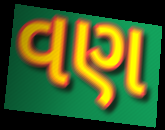
વણ